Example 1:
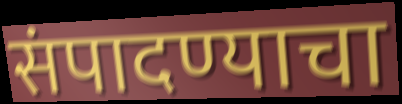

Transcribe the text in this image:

संपादण्याचा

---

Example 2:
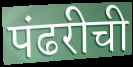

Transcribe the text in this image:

पंढरीची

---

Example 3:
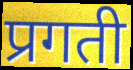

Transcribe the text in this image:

प्रगती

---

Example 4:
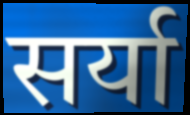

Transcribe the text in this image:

सर्या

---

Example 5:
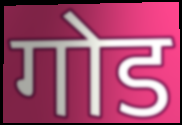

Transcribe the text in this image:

गोड